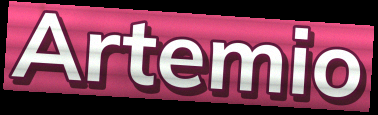
Artemio